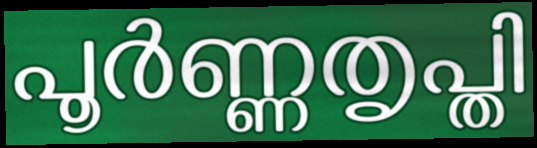
പൂർണ്ണതൃപ്തി